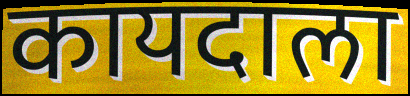
कायदाला